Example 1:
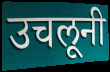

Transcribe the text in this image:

उचलूनी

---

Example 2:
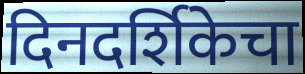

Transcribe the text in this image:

दिनदर्शिकेचा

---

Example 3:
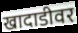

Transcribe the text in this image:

खादाडीवर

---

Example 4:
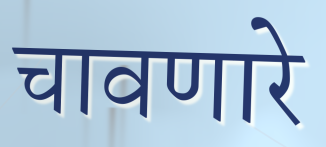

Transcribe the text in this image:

चावणारे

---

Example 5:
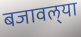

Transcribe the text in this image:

बजावल्या